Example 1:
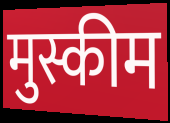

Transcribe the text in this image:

मुस्कीम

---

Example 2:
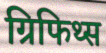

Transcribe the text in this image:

ग्रिफिथ्स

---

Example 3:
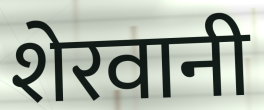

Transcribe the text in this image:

शेरवानी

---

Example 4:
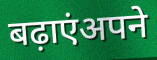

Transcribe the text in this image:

बढ़ाएंअपने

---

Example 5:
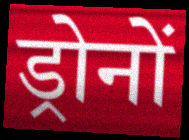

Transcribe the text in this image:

ड्रोनों